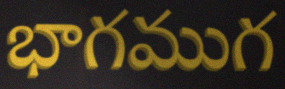
భాగముగ